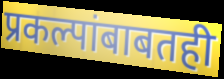
प्रकल्पांबाबतही